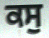
ਕਸੁ